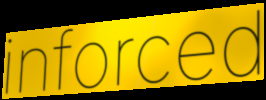
inforced